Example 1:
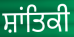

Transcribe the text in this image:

ਸ਼ਾਂਤਿਕੀ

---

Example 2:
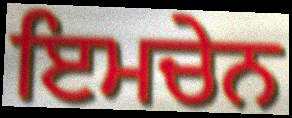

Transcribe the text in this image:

ਇਮਚੇਨ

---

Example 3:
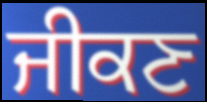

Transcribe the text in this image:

ਜੀਕਣ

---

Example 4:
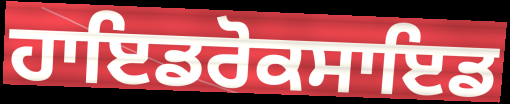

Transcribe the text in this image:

ਹਾਇਡਰੋਕਸਾਇਡ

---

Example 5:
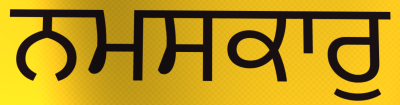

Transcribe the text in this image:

ਨਮਸਕਾਰੁ